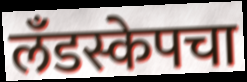
लँडस्केपचा